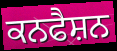
ਕਨਫੈਸ਼ਨ